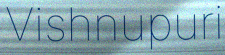
Vishnupuri